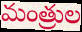
మంత్రుల